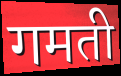
गमती